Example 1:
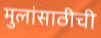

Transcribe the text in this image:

मुलांसाठीची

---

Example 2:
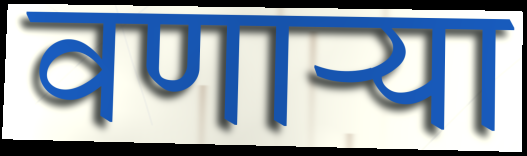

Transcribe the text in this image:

वणाऱ्या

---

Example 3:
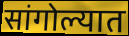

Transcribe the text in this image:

सांगोल्यात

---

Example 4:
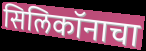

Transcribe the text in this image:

सिलिकॉनाचा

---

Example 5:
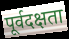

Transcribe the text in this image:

पूर्वदक्षता